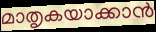
മാതൃകയാക്കാൻ